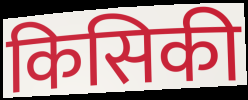
किसिकी